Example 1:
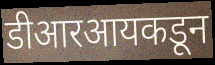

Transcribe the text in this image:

डीआरआयकडून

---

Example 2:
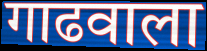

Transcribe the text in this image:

गाढवाला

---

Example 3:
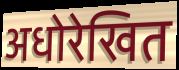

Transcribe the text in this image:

अधोरेखित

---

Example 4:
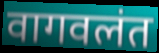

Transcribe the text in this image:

वागवलंत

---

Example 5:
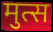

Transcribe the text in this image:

मुत्स